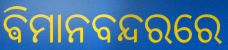
ଵିମାନବନ୍ଦରରେ